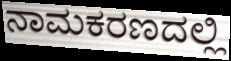
ನಾಮಕರಣದಲ್ಲಿ